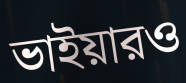
ভাইয়ারও